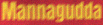
Mannagudda